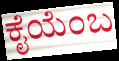
ಕೈಯೆಂಬ